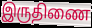
இருதிணை